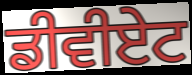
ਡੀਵੀਏਟ